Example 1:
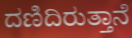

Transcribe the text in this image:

ದಣಿದಿರುತ್ತಾನೆ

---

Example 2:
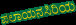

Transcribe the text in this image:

ಪಲಾಯನಸಿರಿಯ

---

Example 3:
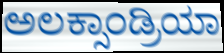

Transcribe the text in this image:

ಅಲಕ್ಸಾಂಡ್ರಿಯಾ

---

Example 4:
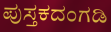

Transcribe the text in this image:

ಪುಸ್ತಕದಂಗಡಿ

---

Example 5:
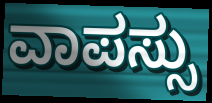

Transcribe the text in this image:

ವಾಪಸ್ಸು